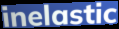
inelastic